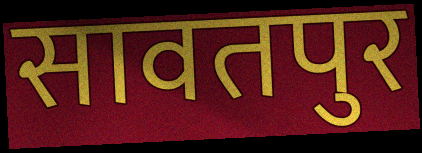
सावतपुर